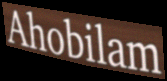
Ahobilam